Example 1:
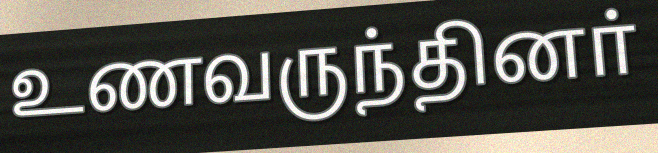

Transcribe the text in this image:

உணவருந்தினர்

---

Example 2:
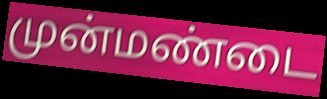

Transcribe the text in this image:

முன்மண்டை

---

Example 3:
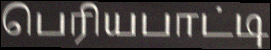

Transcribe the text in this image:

பெரியபாட்டி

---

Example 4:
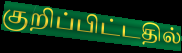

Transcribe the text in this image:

குறிப்பிட்டதில்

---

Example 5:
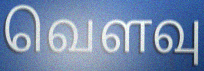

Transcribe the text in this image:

வெளவு